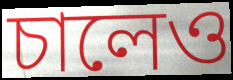
চালেও